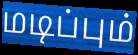
மடிப்பும்